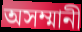
অসম্মানী